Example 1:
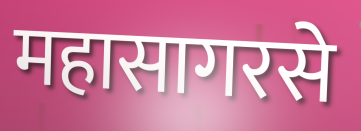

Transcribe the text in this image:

महासागरसे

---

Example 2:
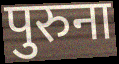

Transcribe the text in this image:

पुरुना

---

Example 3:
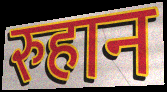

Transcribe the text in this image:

रुहान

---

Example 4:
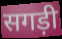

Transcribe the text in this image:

सगड़ी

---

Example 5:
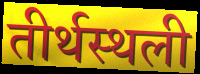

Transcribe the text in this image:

तीर्थस्थली